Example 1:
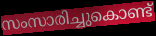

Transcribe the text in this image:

സംസാരിച്ചുകൊണ്ട്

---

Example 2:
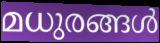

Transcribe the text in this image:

മധുരങ്ങൾ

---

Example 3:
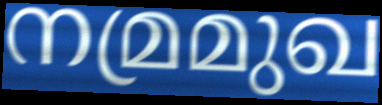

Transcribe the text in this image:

നമ്രമുഖ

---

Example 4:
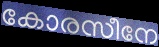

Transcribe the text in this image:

കോരസീനേ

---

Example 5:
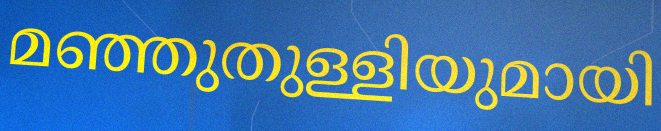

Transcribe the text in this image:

മഞ്ഞുതുള്ളിയുമായി